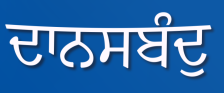
ਦਾਨਸਬੰਦੁ